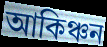
আকিঞ্চন